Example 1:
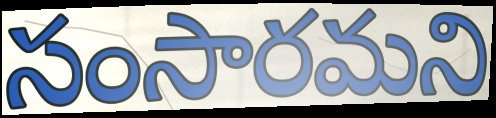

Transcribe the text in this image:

సంసారమని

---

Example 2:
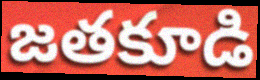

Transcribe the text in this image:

జతకూడి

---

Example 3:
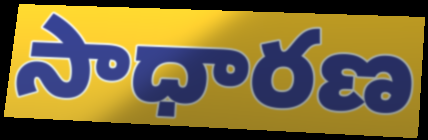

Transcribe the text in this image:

సాధారణ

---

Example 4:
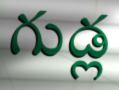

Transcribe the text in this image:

గుడ్ల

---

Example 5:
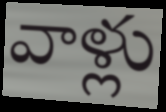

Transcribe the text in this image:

వాళ్లు